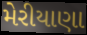
મેરીયાણા